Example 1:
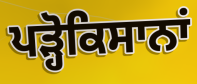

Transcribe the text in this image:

ਪੜ੍ਹੋਕਿਸਾਨਾਂ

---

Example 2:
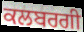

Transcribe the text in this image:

ਕਲਬਰਗੀ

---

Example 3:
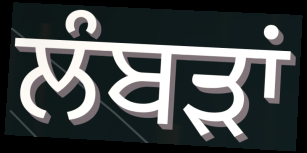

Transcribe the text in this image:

ਲੰਬੜਾਂ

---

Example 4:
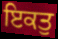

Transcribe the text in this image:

ਇਕਤੁ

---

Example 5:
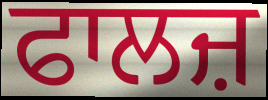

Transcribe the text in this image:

ਫਾਲਜ਼